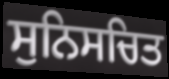
ਸੁਨਿਸਚਿਤ